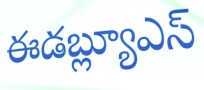
ఈడబ్ల్యూఎస్